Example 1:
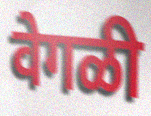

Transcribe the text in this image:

वेगळी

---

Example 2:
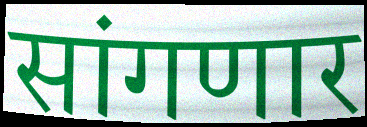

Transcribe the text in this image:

सांगणार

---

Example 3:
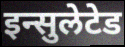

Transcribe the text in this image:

इन्सुलेटेड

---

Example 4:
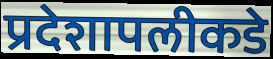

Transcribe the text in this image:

प्रदेशापलीकडे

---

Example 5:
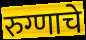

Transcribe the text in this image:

रुग्‍णाचे